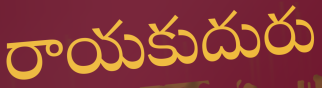
రాయకుదురు